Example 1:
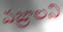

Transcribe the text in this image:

వజ్రాలని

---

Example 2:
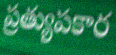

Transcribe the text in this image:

ప్రత్యుపకార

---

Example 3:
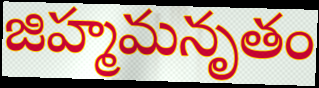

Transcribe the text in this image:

జిహ్మమనృతం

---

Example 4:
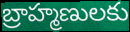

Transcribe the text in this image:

బ్రాహ్మణులకు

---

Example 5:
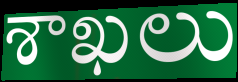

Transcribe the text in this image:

శాఖలు